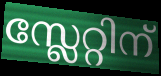
സ്ലേറ്റിന്